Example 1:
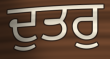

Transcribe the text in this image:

ਦੁਤਰੁ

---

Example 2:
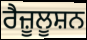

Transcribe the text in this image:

ਰੈਜ਼ੂਲੂਸ਼ਨ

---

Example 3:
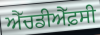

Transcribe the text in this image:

ਐੱਚਡੀਐੱਫ਼ਸੀ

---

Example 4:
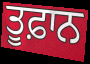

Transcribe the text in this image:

ਤੂਫ਼ਾਨ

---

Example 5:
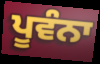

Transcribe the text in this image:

ਪੂਵੰਨਾ